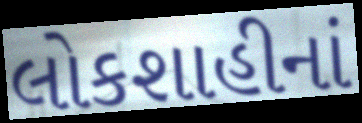
લોકશાહીનાં